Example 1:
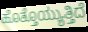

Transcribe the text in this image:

ಹೊತ್ತೊಯ್ಯುತ್ತಿದೆ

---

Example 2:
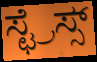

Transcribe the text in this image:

ಸ್ಟ್ರೆಸ್ಸ್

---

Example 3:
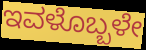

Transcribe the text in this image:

ಇವಳೊಬ್ಬಳೇ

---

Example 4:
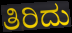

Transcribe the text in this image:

ತಿರಿದು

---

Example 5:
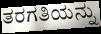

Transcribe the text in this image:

ತರಗತಿಯನ್ನು